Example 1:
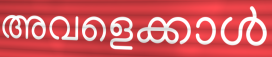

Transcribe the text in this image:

അവളെക്കാൾ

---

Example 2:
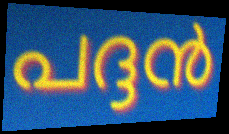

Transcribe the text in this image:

പദ്ദൻ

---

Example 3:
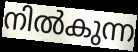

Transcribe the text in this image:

നിൽകുന്ന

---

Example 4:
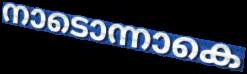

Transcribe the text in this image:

നാടൊന്നാകെ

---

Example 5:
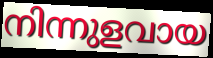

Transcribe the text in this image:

നിന്നുളവായ